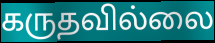
கருதவில்லை